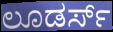
ಲೂಡರ್ಸ್